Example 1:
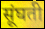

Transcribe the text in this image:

सूंघती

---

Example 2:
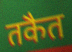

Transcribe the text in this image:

तकैत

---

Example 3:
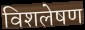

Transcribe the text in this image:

विशलेषण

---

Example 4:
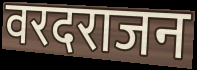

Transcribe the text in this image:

वरदराजन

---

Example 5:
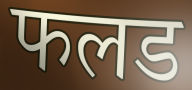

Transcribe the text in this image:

फलड